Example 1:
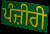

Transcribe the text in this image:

ਪੰਜ਼ੀਰੀ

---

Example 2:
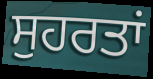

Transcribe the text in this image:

ਸੁਹਰਤਾਂ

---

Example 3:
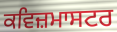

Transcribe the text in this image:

ਕਵਿਜ਼ਮਾਸਟਰ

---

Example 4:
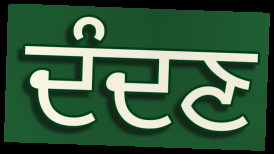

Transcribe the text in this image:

ਦੰਦਣ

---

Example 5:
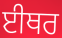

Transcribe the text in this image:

ਈਥਰ